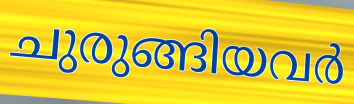
ചുരുങ്ങിയവർ